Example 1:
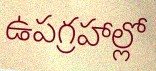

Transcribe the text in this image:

ఉపగ్రహాల్లో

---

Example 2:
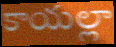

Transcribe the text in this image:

కాయల్లా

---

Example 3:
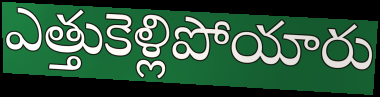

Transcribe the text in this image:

ఎత్తుకెళ్లిపోయారు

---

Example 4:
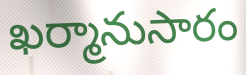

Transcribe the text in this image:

ఖర్మానుసారం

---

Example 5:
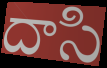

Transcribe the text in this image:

దాసి